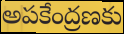
అపకేంద్రణకు